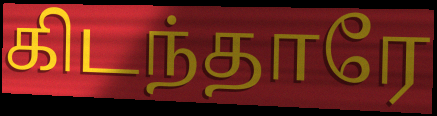
கிடந்தாரே